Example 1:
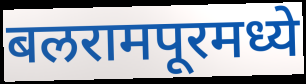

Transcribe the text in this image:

बलरामपूरमध्ये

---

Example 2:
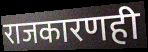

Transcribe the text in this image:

राजकारणही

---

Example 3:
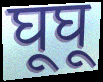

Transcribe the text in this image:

घूघू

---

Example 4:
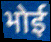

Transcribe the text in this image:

भोई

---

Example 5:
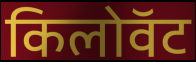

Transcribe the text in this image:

किलोवॅट